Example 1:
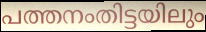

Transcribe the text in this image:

പത്തനംതിട്ടയിലും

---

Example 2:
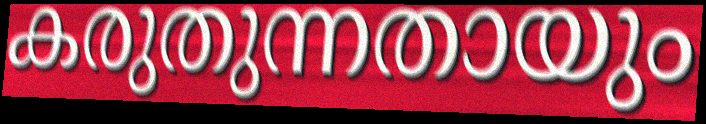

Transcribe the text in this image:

കരുതുന്നതായും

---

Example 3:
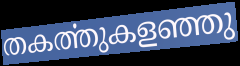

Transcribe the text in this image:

തകൎത്തുകളഞ്ഞു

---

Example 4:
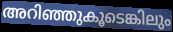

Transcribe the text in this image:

അറിഞ്ഞുകൂടെങ്കിലും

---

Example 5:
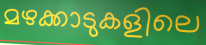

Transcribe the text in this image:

മഴക്കാടുകളിലെ